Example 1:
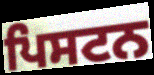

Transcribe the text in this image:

ਪਿਸਟਨ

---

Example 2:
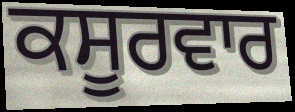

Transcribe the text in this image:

ਕਸੂਰਵਾਰ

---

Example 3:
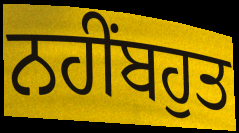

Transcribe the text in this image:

ਨਹੀਂਬਹੁਤ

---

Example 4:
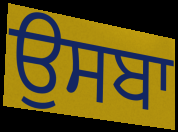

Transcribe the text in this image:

ਉਸਬਾ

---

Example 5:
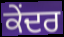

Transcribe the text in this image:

ਕੇੰਦਰ